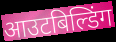
आउटबिल्डिंग